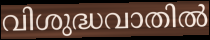
വിശുദ്ധവാതിൽ